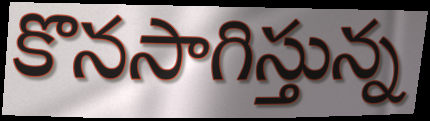
కొనసాగిస్తున్న